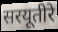
सरयूतीरे